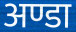
अण्डा